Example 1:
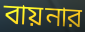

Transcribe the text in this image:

বায়নার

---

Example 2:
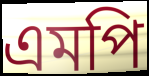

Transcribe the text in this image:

এমপি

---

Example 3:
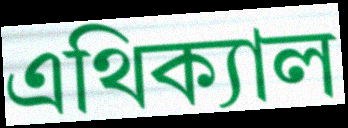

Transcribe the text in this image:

এথিক্যাল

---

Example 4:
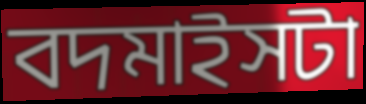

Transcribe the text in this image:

বদমাইসটা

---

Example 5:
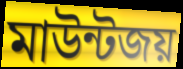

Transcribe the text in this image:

মাউন্টজয়